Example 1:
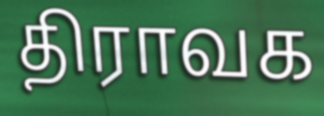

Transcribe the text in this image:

திராவக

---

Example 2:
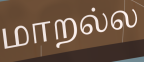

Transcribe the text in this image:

மாறல்ல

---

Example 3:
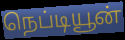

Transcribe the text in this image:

நெப்டியூன்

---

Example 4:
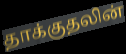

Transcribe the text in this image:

தாக்குதலின்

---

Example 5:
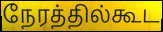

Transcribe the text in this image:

நேரத்தில்கூட